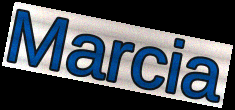
Marcia